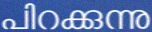
പിറക്കുന്നു